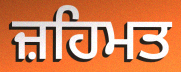
ਜ਼ਹਿਮਤ